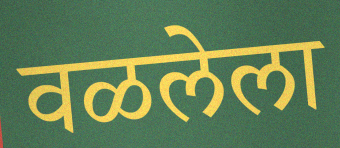
वळलेला